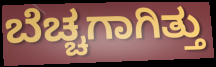
ಬೆಚ್ಚಗಾಗಿತ್ತು